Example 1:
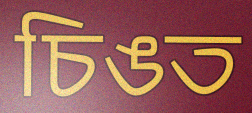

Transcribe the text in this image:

চিঙত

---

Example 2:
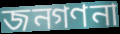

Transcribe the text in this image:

জনগণনা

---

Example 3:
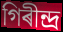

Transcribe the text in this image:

গিৰীন্দ্ৰ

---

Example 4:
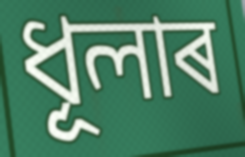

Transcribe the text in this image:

ধূলাৰ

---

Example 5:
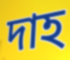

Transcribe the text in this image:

দাহ